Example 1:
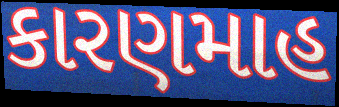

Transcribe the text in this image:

કારણમાહ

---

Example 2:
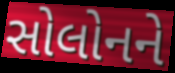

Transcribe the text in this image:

સોલોનને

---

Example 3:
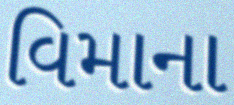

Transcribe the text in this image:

વિમાના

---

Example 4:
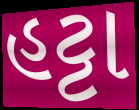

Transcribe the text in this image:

હટ્ટા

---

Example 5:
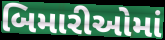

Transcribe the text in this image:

બિમારીઓમાં